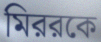
মিররকে